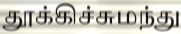
தூக்கிச்சுமந்து